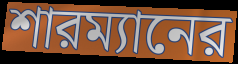
শারম্যানের